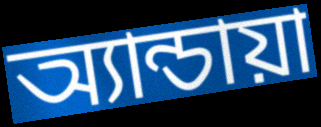
অ্যান্ডায়া